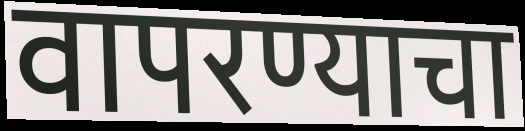
वापरण्याचा